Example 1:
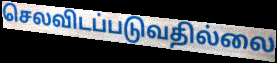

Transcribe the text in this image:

செலவிடப்படுவதில்லை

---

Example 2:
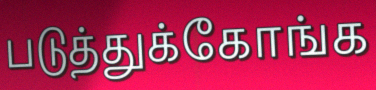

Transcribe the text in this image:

படுத்துக்கோங்க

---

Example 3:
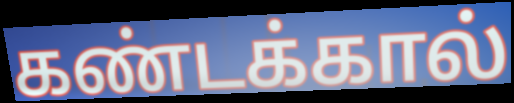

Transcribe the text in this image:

கண்டக்கால்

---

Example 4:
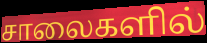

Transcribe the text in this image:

சாலைகளில்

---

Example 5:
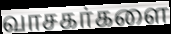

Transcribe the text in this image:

வாசகர்களை